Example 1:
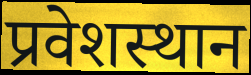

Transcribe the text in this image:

प्रवेशस्थान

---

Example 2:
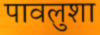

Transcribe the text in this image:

पावलुशा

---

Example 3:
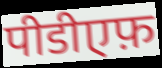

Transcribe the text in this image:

पीडीएफ़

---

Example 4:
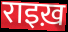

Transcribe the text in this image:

राइख़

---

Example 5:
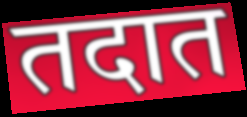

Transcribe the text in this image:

तदात